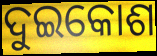
ଦୁଇକୋଶ